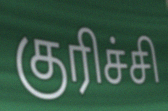
குரிச்சி